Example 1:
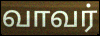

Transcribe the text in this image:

வாவர்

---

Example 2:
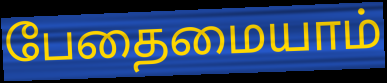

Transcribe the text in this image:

பேதைமையாம்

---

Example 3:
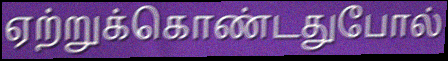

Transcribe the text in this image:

ஏற்றுக்கொண்டதுபோல்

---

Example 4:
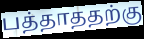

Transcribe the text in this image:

பத்தாததற்கு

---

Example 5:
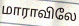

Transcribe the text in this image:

மாராவிலே